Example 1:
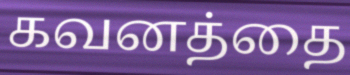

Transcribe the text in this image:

கவனத்தை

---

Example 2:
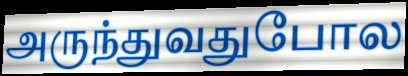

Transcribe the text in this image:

அருந்துவதுபோல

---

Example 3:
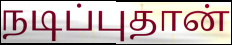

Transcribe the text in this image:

நடிப்புதான்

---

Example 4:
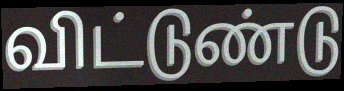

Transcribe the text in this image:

விட்டுண்டு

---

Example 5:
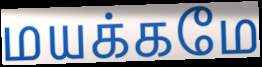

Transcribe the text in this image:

மயக்கமே